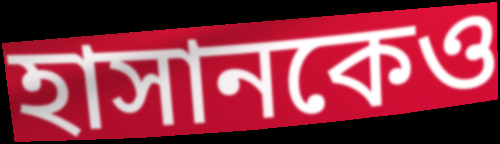
হাসানকেও